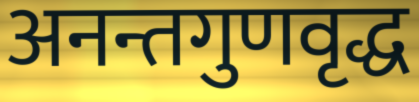
अनन्तगुणवृद्ध